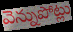
వెన్నుపోట్లు